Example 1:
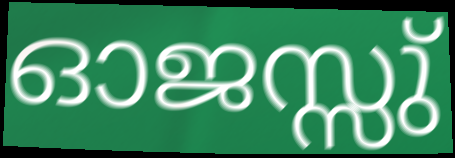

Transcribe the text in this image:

ഓജസ്സു്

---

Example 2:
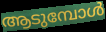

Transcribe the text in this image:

ആടുമ്പോൾ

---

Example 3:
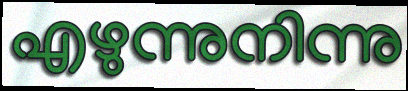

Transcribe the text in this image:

എഴുന്നുനിന്നു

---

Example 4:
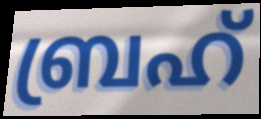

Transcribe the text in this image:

ബ്രഹ്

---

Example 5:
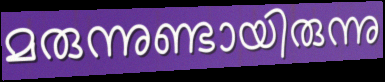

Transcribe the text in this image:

മരുന്നുണ്ടായിരുന്നു